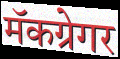
मॅकग्रेगर